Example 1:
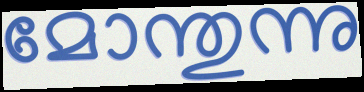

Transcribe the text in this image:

മോന്തുന്നു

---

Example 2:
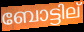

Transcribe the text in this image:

ബോട്ടില്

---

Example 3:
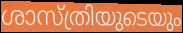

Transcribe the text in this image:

ശാസ്ത്രിയുടെയും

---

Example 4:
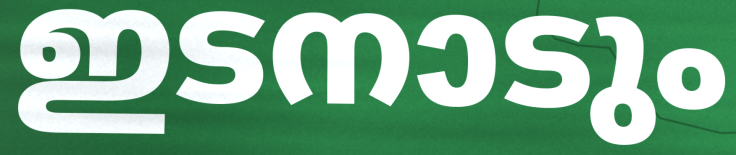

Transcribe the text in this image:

ഇടനാടും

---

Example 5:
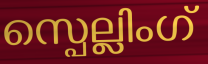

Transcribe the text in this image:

സ്പെല്ലിംഗ്